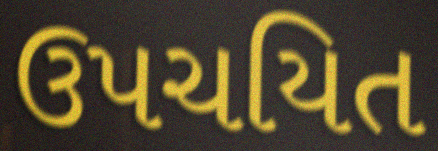
ઉપચયિત